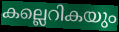
കല്ലെറികയും